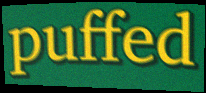
puffed